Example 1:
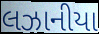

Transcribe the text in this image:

લઝાનીયા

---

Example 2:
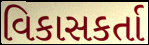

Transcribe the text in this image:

વિકાસકર્તા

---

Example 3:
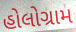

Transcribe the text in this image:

હોલોગ્રામ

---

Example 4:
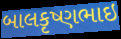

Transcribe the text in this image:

બાલકૃષ્ણભાઇ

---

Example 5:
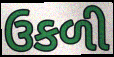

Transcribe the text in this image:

ઉકળી